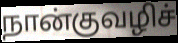
நான்குவழிச்